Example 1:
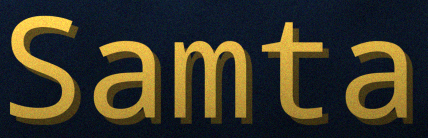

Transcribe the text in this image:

Samta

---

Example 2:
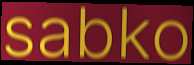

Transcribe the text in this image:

sabko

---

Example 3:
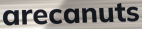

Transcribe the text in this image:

arecanuts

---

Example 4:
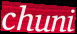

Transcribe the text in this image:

chuni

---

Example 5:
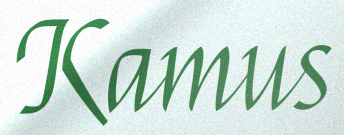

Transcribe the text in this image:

Kamus